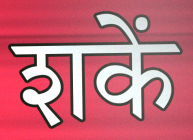
शकें